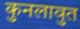
कुनलावुत